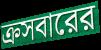
ক্রসবারের